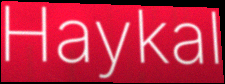
Haykal